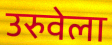
उरुवेला